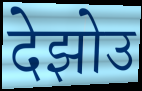
देझोउ